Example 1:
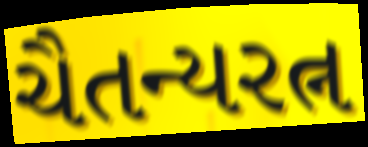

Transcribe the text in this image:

ચૈતન્યરત્ન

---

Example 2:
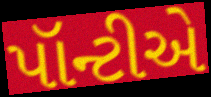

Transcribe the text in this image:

પૉન્ટીએ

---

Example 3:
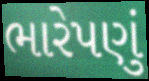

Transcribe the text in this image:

ભારેપણું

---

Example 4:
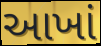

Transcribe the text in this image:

આખાં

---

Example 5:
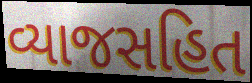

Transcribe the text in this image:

વ્યાજસહિત